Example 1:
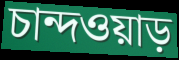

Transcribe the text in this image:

চান্দওয়াড়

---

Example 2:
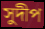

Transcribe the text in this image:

সুদীপ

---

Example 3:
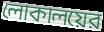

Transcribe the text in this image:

লোকালয়ের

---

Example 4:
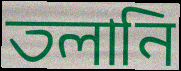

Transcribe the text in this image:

তলানি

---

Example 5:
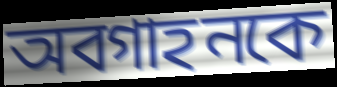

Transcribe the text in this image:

অবগাহনকে